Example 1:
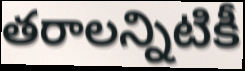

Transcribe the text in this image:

తరాలన్నిటికీ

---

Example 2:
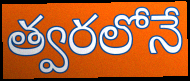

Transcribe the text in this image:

త్వరలోనే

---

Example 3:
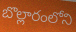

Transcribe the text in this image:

బొల్లారంలోని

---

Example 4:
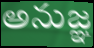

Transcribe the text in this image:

అనుజ్ఞ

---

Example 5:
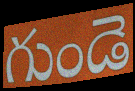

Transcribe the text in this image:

గుండె